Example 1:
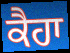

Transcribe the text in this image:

ਕੈਹਾ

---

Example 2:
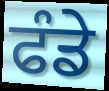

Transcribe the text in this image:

ਫੰਡੇ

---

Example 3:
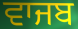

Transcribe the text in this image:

ਵਾਜਬ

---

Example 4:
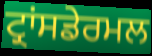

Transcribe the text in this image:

ਟ੍ਰਾਂਸਡੇਰਮਲ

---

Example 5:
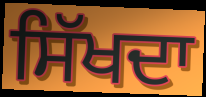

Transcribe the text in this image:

ਸਿੱਖਦਾ